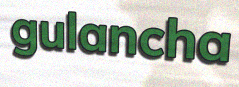
gulancha